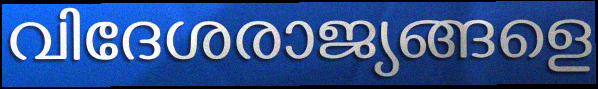
വിദേശരാജ്യങ്ങളെ